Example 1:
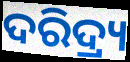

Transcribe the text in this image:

ଦରିଦ୍ର୍ୟ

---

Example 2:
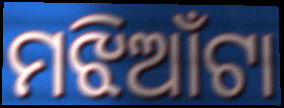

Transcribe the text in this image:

ମଝିଆଁଟା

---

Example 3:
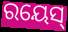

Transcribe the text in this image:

ରୟେସ୍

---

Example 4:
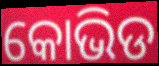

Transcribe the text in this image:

କୋଭିଡ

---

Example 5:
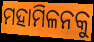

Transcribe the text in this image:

ମହାମିଳନକୁ